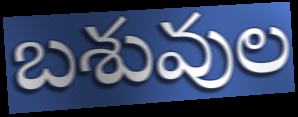
బశువుల